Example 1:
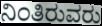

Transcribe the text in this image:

ನಿಂತಿರುವರು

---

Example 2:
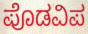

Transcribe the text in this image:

ಪೊಡವಿಪ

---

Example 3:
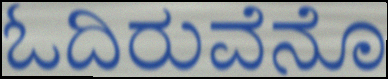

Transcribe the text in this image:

ಓದಿರುವೆನೊ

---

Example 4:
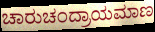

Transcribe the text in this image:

ಚಾರುಚಂದ್ರಾಯಮಾಣ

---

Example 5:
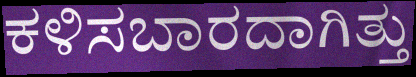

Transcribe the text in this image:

ಕಳಿಸಬಾರದಾಗಿತ್ತು